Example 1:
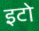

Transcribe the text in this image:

इटो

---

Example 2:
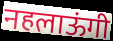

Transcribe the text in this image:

नहलाऊंगी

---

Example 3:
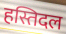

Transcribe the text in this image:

हस्तिदल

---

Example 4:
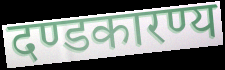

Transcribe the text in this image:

दण्डकारण्य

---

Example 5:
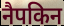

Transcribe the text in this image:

नैपकिन